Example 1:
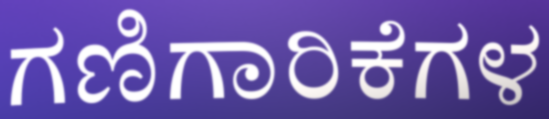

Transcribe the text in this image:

ಗಣಿಗಾರಿಕೆಗಳ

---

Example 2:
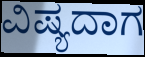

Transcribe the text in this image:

ವಿಷ್ಯದಾಗ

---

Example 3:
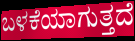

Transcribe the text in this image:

ಬಳಕೆಯಾಗುತ್ತದೆ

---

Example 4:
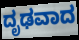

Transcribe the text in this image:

ದೃಢವಾದ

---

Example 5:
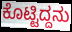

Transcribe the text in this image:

ಕೊಟ್ಟಿದ್ದನು